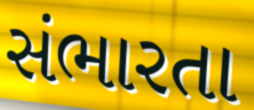
સંભારતા